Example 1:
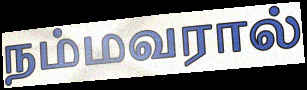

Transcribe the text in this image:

நம்மவரால்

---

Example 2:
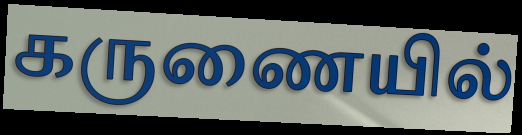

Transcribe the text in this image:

கருணையில்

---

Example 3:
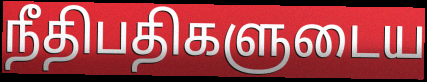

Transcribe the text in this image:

நீதிபதிகளுடைய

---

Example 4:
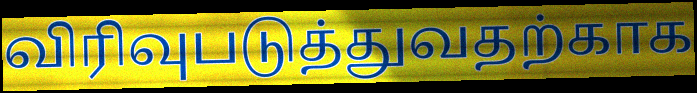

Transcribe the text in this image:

விரிவுபடுத்துவதற்காக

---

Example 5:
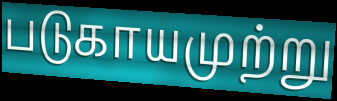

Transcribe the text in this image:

படுகாயமுற்று